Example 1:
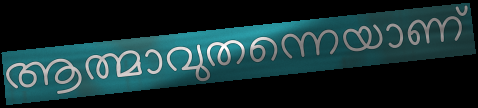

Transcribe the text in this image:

ആത്മാവുതന്നെയാണ്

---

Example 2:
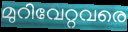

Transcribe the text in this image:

മുറിവേറ്റവരെ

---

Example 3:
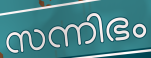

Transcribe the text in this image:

സന്നിഭം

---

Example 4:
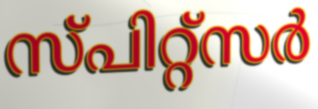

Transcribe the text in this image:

സ്പിറ്റ്സർ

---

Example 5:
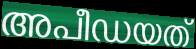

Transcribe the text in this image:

അപീഡയത്